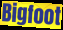
Bigfoot